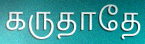
கருதாதே